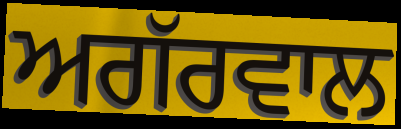
ਅਗੱਰਵਾਲ